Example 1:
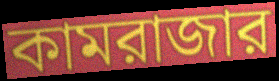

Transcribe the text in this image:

কামরাজার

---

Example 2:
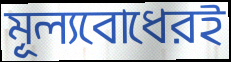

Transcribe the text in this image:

মূল্যবোধেরই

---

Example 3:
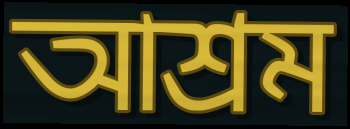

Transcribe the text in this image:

আশ্রম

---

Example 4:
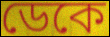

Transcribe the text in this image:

ডেকে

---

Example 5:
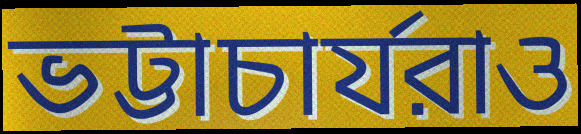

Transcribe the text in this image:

ভট্টাচার্যরাও